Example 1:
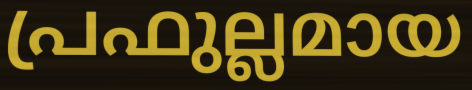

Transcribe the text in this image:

പ്രഫുല്ലമായ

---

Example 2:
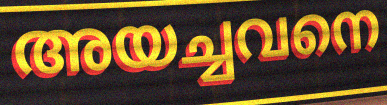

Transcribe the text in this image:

അയച്ചവനെ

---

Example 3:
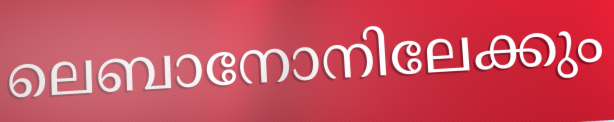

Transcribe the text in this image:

ലെബാനോനിലേക്കും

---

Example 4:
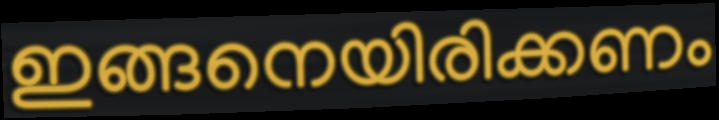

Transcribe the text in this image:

ഇങ്ങനെയിരിക്കണം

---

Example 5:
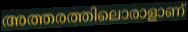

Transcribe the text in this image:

അത്തരത്തിലൊരാളാണ്